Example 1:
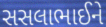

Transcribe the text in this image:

સસલાભાઈને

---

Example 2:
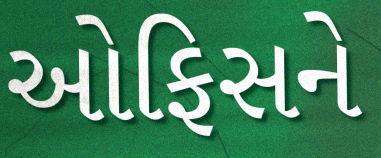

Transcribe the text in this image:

ઓફિસને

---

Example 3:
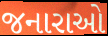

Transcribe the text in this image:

જનારાઓ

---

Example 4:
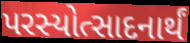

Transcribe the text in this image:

પરસ્યોત્સાદનાર્થં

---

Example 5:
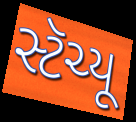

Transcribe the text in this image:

સ્ટૅચ્યૂ